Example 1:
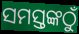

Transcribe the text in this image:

ସମସ୍ତଙ୍କଠୁଁ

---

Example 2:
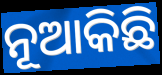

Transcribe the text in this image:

ନୂଆକିଛି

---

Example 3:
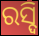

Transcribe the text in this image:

ରସ୍ଦି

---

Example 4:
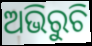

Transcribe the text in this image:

ଅଭିରୁଚି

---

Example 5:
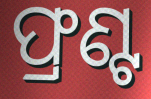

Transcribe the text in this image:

ଫ୍ରଣ୍ଟ